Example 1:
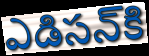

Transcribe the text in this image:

ఎడిసన్‌కి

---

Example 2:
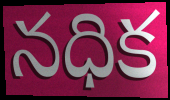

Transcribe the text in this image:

నధిక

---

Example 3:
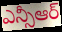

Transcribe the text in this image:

ఎన్సీఆర్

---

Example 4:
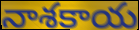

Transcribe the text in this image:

నాశకాయ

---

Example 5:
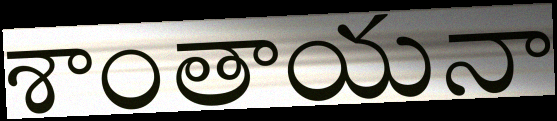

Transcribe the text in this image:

శాంతాయనా